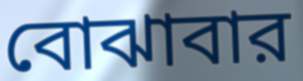
বোঝাবার